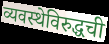
व्यवस्थेविरुद्धची